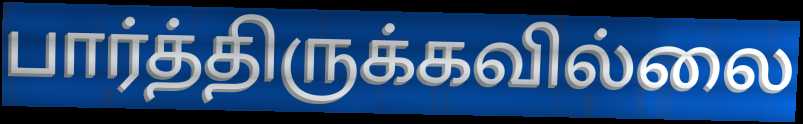
பார்த்திருக்கவில்லை